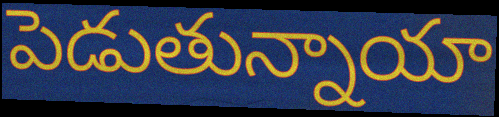
పెడుతున్నాయా